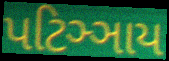
પટિઞ્ઞાય